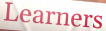
Learners